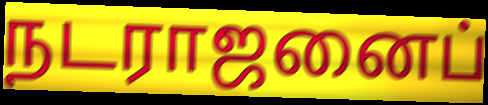
நடராஜனைப்